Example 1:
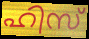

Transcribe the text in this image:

ഹിസ്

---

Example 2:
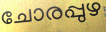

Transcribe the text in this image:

ചോരപ്പുഴ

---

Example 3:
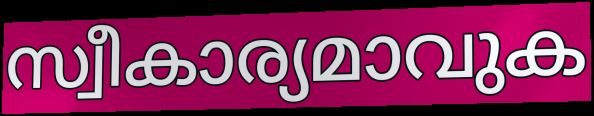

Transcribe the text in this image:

സ്വീകാര്യമാവുക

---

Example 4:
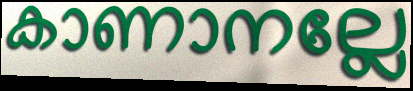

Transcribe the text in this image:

കാണാനല്ലേ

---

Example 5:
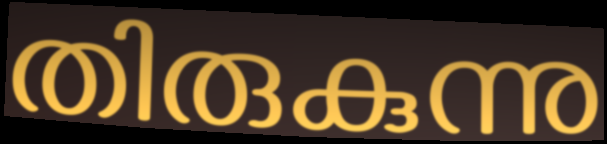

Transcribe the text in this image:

തിരുകുന്നു